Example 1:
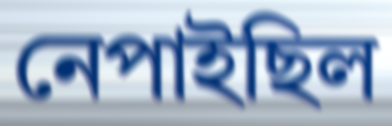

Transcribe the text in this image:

নেপাইছিল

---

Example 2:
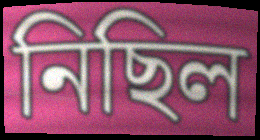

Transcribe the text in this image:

নিছিল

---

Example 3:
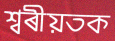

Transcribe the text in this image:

শ্বৰীয়তক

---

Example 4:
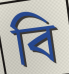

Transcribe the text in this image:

বি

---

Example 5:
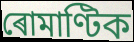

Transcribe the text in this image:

ৰোমাণ্টিক